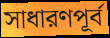
সাধারণপূর্ব